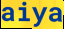
aiya